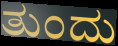
ತುಂದು